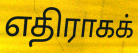
எதிராகக்